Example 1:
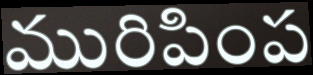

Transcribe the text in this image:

మురిపింప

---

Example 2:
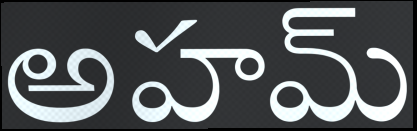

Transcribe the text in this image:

అహమ్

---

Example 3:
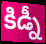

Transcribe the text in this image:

కిడ్నీ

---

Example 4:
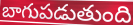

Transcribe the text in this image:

బాగుపడుతుంది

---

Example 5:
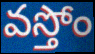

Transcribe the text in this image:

వస్తోం